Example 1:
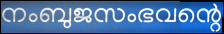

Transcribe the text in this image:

നംബുജസംഭവന്റെ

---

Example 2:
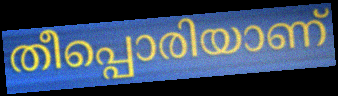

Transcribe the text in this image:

തീപ്പൊരിയാണ്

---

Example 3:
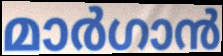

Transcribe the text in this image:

മാർഗാൻ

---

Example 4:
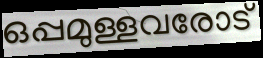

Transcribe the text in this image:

ഒപ്പമുള്ളവരോട്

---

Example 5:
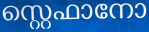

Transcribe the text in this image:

സ്റ്റെഫാനോ